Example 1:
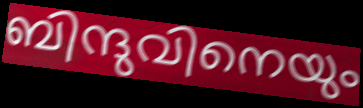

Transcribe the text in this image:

ബിന്ദുവിനെയും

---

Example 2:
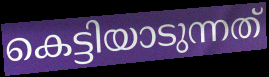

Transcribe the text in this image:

കെട്ടിയാടുന്നത്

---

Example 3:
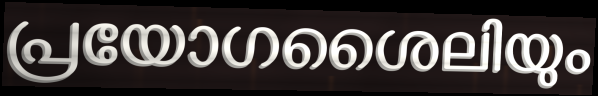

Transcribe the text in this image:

പ്രയോഗശൈലിയും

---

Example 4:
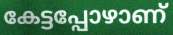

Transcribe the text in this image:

കേട്ടപ്പോഴാണ്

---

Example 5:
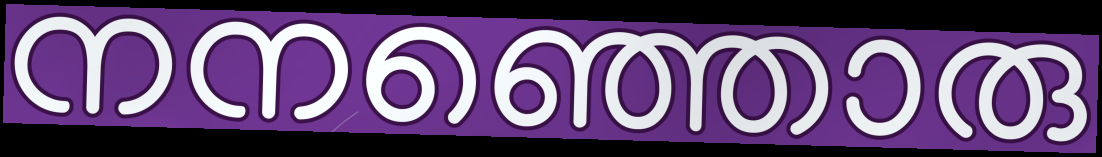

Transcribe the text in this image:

നനഞ്ഞൊരു